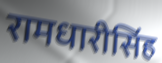
रामधारीसिंह